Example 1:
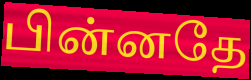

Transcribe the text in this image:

பின்னதே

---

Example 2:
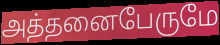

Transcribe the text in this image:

அத்தனைபேருமே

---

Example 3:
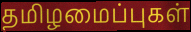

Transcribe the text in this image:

தமிழமைப்புகள்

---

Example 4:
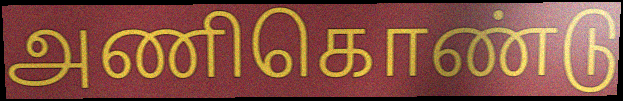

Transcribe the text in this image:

அணிகொண்டு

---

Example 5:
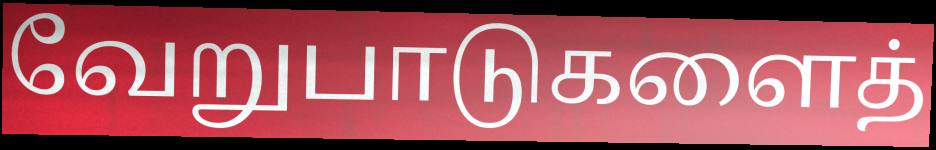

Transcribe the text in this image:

வேறுபாடுகளைத்